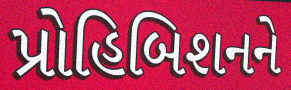
પ્રોહિબિશનને